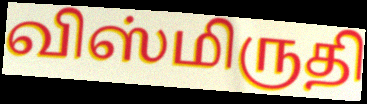
விஸ்மிருதி